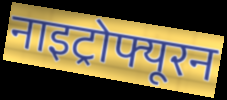
नाइट्रोफ्यूरन